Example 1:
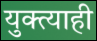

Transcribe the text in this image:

युक्त्याही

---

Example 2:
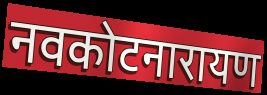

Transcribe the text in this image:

नवकोटनारायण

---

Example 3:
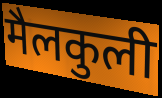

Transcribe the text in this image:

मैलकुली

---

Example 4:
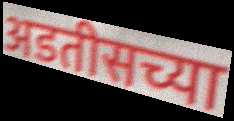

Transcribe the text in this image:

अडतीसच्या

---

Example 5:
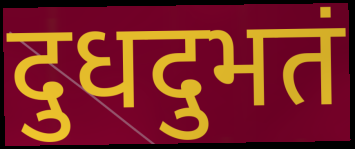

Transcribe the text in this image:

दुधदुभतं